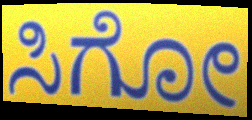
ಸಿಗೋ